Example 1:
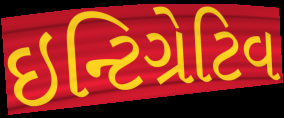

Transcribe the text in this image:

ઇન્ટિગ્રેટિવ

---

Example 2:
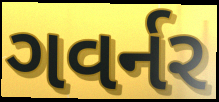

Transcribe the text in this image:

ગવર્નર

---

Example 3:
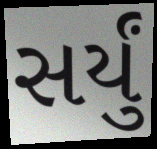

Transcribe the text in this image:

સર્યું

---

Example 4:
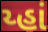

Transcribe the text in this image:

ય્હાં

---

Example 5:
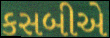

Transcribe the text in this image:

કસબીએ